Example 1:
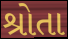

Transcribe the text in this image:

શ્રોતા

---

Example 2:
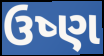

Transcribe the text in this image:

ઉષ્ણ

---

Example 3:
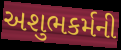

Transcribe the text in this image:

અશુભકર્મની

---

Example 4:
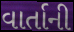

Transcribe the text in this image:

વાર્તાની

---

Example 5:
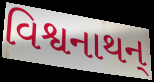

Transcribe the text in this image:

વિશ્વનાથન્